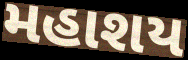
મહાશય